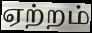
ஏற்றம்